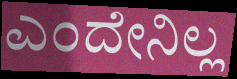
ಎಂದೇನಿಲ್ಲ